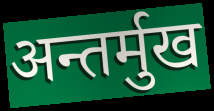
अन्तर्मुख